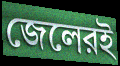
জেলেরই